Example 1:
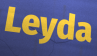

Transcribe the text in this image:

Leyda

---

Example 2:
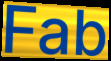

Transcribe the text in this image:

Fab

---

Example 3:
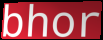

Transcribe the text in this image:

bhor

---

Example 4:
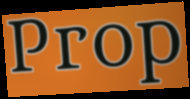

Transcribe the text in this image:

Prop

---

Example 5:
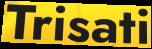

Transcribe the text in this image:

Trisati